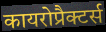
कायरोप्रैक्टर्स